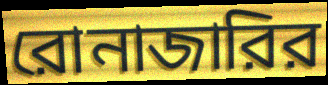
রোনাজারির